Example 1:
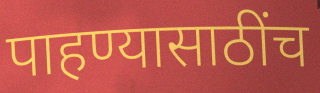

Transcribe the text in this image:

पाहण्यासाठींच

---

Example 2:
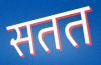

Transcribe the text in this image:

सतत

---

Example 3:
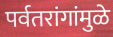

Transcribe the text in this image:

पर्वतरांगांमुळे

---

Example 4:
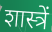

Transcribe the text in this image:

शास्त्रें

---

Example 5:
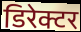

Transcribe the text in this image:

डिरेक्टर